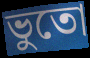
ভুতো